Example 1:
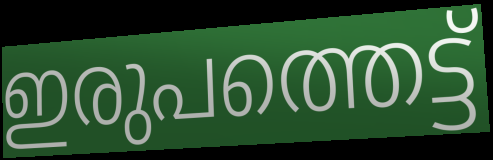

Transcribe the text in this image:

ഇരുപത്തെട്ട്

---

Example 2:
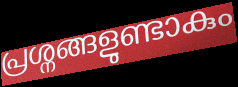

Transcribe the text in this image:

പ്രശ്നങ്ങളുണ്ടാകും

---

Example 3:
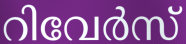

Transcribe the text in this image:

റിവേർസ്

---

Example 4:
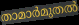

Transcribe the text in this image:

താമാർമുതൽ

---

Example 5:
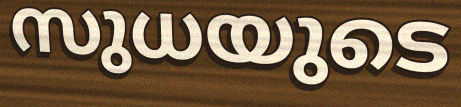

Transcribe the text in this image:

സുധയുടെ